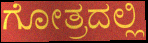
ಗೋತ್ರದಲ್ಲಿ